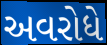
અવરોધે